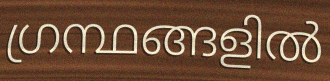
ഗ്രന്ഥങ്ങളിൽ